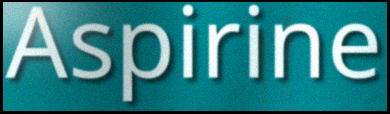
Aspirine